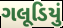
ગલૂડિયું